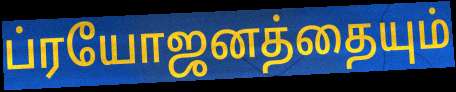
ப்ரயோஜனத்தையும்